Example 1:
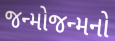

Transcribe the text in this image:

જન્મોજન્મનો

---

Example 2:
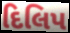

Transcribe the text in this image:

દિલિપ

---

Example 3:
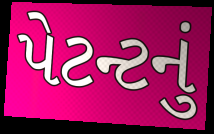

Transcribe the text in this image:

પેટન્ટનું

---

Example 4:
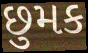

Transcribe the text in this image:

છુમક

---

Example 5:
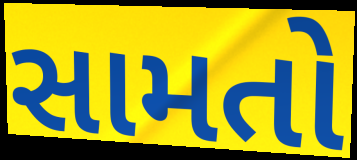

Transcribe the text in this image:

સામતો